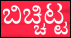
ಬಿಚ್ಚಿಟ್ಟ